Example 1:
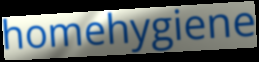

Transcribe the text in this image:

homehygiene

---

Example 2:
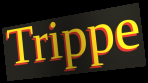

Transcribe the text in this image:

Trippe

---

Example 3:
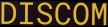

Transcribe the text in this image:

DISCOM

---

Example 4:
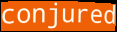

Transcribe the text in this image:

conjured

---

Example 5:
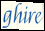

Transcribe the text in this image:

ghire